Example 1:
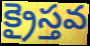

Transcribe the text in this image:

క్రైస్తవ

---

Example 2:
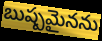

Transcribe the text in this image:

బుష్పమైనను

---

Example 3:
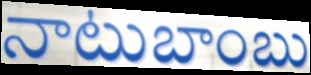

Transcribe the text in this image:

నాటుబాంబు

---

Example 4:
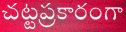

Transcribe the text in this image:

చట్టప్రకారంగా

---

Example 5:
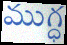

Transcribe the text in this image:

ముగ్ధ